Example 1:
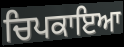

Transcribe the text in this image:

ਚਿਪਕਾਇਆ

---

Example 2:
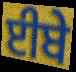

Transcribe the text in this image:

ਈਬੇ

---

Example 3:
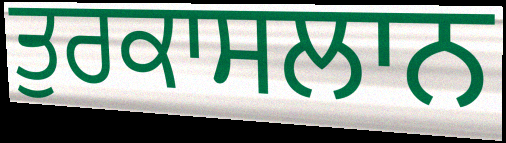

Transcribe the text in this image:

ਤੁਰਕਾਸਲਾਨ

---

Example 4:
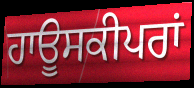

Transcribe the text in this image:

ਹਾਊਸਕੀਪਰਾਂ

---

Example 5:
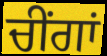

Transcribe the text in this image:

ਚੀਂਗਾਂ